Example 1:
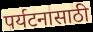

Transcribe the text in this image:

पर्यटनासाठी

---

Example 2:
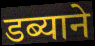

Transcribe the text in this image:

डब्याने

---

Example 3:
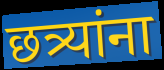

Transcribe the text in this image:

छत्र्यांना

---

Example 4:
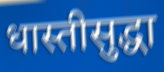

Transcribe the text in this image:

धास्तीसुद्धा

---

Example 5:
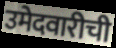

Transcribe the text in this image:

उमेदवारीची